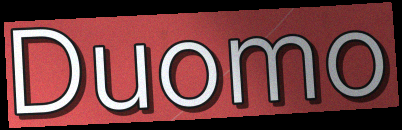
Duomo